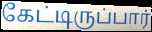
கேட்டிருப்பார்